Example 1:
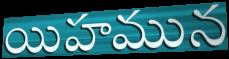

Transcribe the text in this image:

యిహమున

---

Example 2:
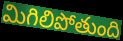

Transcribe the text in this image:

మిగిలిపోతుంది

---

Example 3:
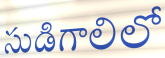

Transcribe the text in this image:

సుడిగాలిలో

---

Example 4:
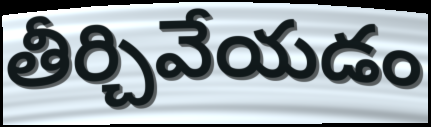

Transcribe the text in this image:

తీర్చివేయడం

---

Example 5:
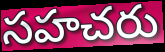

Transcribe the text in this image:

సహచరు